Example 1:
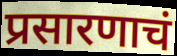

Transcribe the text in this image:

प्रसारणाचं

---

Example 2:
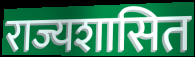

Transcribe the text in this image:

राज्यशासित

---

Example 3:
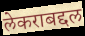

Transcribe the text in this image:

लेकराबद्दल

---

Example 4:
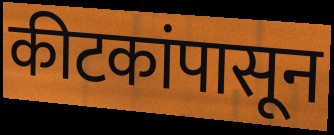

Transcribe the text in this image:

कीटकांपासून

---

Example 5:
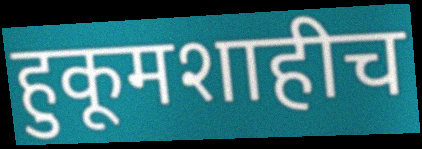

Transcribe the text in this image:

हुकूमशाहीच